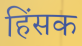
हिंसक